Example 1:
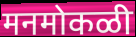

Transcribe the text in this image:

मनमोकळी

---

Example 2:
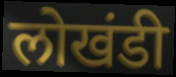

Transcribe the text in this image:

लोखंडी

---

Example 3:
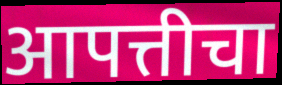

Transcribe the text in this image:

आपत्तीचा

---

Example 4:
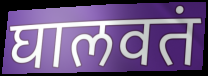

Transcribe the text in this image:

घालवतं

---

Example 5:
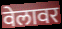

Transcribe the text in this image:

वेलावर